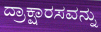
ದ್ರಾಕ್ಷಾರಸವನ್ನು